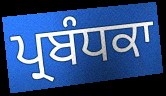
ਪ੍ਰਬੰਧਕਾ